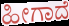
ಹೀಗಾದೆ